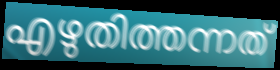
എഴുതിത്തന്നത്